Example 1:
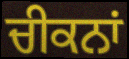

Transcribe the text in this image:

ਚੀਕਨਾਂ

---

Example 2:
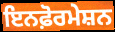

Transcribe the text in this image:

ਇਨਫ਼ੋਰਮੇਸ਼ਨ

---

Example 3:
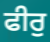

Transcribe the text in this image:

ਫੀਰੁ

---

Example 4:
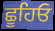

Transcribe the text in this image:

ਛੂਹਿਓ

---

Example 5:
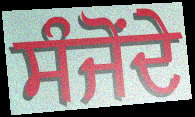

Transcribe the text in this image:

ਸੰਜੋਂਦੇ